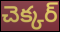
చెక్కర్